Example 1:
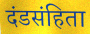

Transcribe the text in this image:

दंडसंहिता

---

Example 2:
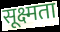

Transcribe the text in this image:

सूक्ष्मता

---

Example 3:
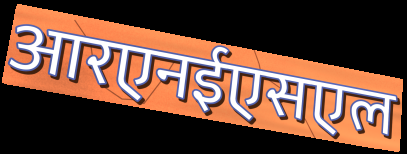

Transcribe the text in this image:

आरएनईएसएल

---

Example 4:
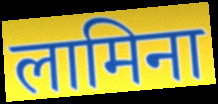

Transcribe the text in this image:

लामिना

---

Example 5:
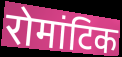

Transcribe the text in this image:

रोमांटिक